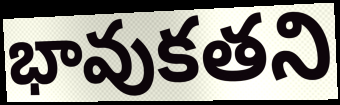
భావుకతని